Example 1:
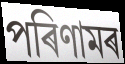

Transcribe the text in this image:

পৰিণামৰ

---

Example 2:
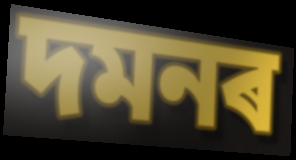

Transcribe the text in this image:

দমনৰ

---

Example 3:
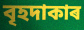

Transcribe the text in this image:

বৃহদাকাৰ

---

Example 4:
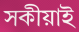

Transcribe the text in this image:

সকীয়াই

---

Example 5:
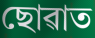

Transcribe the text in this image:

ছোৱাত